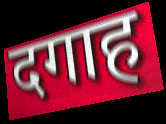
दगाह